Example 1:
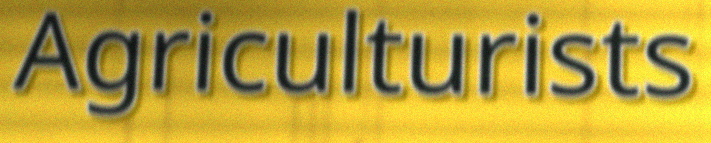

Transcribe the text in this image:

Agriculturists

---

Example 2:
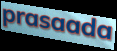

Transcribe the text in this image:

prasaada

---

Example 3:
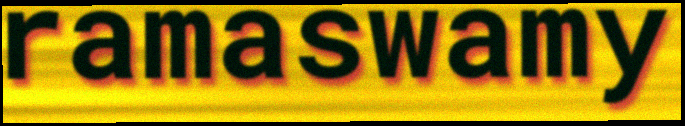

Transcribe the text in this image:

ramaswamy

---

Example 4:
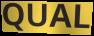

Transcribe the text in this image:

QUAL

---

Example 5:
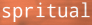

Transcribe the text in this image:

spritual